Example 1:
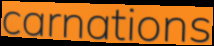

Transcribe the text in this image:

carnations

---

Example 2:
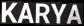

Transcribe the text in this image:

KARYA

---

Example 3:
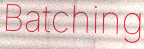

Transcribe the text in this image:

Batching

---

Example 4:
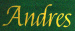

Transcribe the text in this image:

Andres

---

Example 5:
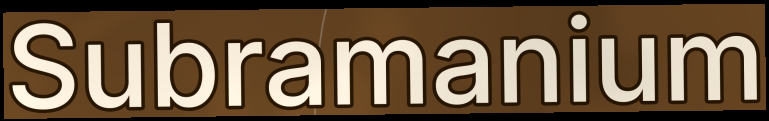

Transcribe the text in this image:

Subramanium